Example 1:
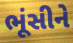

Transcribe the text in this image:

ભૂંસીને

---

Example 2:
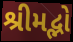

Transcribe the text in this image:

શ્રીમદ્ભો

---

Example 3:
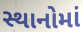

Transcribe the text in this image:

સ્થાનોમાં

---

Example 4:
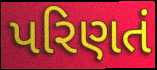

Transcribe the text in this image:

પરિણતં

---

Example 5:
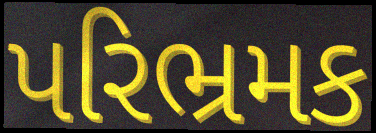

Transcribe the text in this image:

પરિભ્રમક